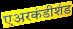
एअरकंडीशंड